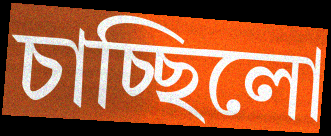
চাচ্ছিলো